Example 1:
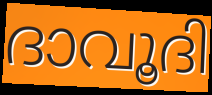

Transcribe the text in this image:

ദാവൂദി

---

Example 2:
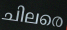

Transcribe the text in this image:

ചിലരെ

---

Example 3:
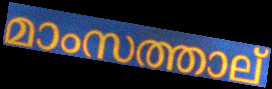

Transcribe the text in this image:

മാംസത്താല്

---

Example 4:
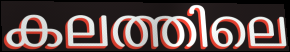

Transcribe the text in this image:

കലത്തിലെ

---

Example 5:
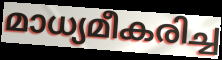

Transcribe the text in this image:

മാധ്യമീകരിച്ച